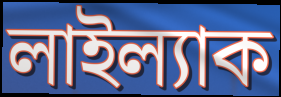
লাইল্যাক